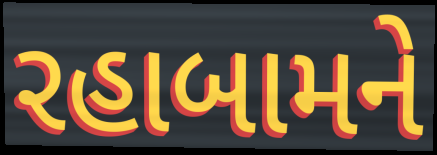
રહાબામને